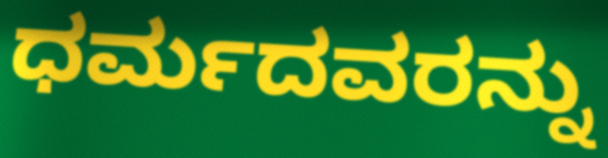
ಧರ್ಮದವರನ್ನು